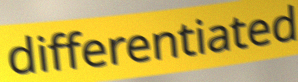
differentiated